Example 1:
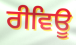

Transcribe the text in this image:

ਰੀਵਿਊ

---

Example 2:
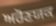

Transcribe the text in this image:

ਅਰੋਣਯਕ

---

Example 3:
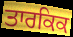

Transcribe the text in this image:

ਤਾਰਕਿਕ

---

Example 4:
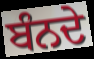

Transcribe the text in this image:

ਬੰਨਦੇ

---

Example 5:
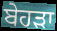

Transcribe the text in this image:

ਬੇਹੜਾ